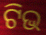
ଟିଭ